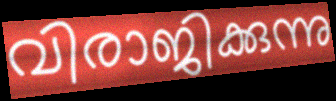
വിരാജിക്കുന്നു